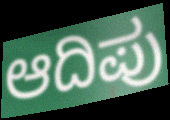
ಆದಿಪು